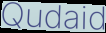
Qudaid